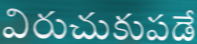
విరుచుకుపడే